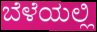
ಬೆಳೆಯಲ್ಲಿ